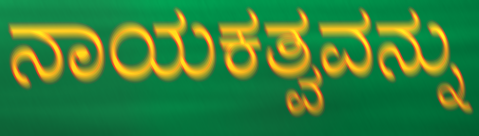
ನಾಯಕತ್ವವನ್ನು